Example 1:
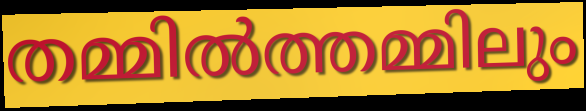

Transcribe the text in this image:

തമ്മിൽത്തമ്മിലും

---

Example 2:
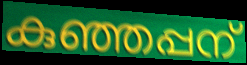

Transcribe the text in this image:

കുഞ്ഞപ്പന്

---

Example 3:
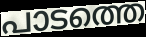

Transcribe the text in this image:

പാടത്തെ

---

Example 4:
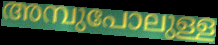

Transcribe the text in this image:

അമ്പുപോലുള്ള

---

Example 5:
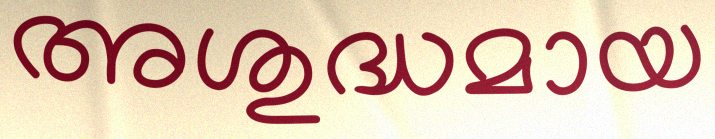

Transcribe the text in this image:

അശുദ്ധമായ